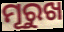
ମୂରୁଖ